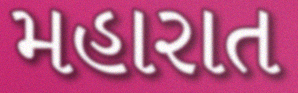
મહારાત